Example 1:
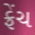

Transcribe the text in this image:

ફ્રેંચ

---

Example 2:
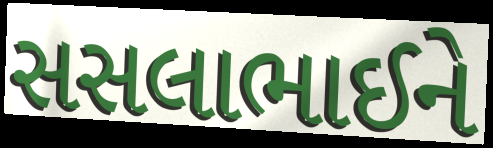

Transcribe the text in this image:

સસલાભાઈને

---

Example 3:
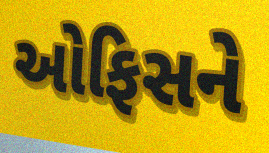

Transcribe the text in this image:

ઓફિસને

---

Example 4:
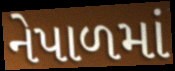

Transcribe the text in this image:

નેપાળમાં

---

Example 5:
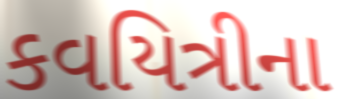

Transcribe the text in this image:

કવયિત્રીના